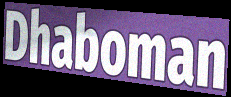
Dhaboman